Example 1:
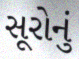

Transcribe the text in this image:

સૂરોનું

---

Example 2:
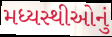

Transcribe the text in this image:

મધ્યસ્થીઓનું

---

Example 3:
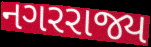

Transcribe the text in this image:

નગરરાજ્ય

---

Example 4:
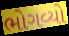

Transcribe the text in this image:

ભોગવ્યો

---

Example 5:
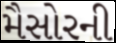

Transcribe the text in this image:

મૈસોરની